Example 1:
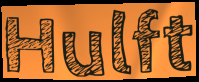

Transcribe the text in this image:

Hulft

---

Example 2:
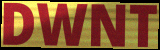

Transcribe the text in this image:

DWNT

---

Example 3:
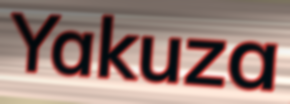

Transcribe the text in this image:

Yakuza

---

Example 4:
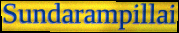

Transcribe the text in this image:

Sundarampillai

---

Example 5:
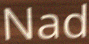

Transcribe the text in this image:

Nad